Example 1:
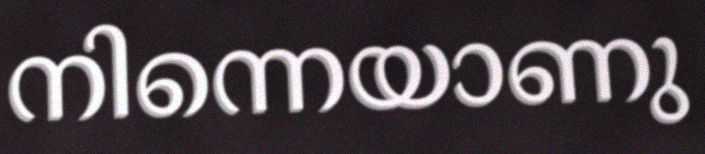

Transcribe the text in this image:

നിന്നെയാണു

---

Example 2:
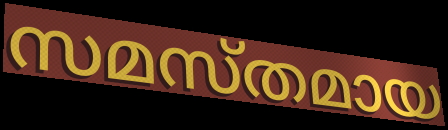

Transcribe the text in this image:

സമസ്തമായ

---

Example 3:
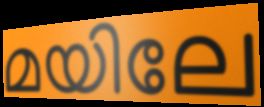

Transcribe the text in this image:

മയിലേ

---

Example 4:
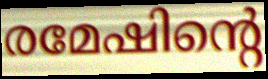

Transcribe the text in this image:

രമേഷിന്റെ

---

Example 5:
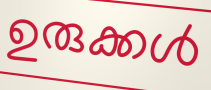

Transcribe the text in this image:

ഉരുക്കൾ